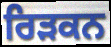
ਰਿੜਕਨ